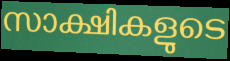
സാക്ഷികളുടെ